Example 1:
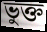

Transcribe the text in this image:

ভুক্ত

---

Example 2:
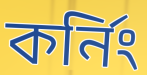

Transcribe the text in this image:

কর্নিং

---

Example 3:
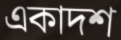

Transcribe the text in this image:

একাদশ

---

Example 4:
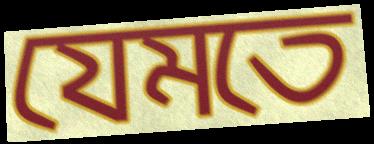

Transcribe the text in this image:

যেমতে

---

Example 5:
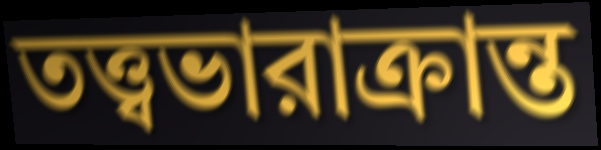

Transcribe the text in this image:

তত্ত্বভারাক্রান্ত